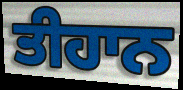
ਤੀਹਾਨ